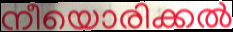
നീയൊരിക്കൽ